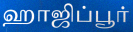
ஹாஜிப்பூர்